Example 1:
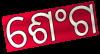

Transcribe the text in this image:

ଶେଂଗ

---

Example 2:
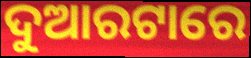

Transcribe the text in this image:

ଦୁଆରଟାରେ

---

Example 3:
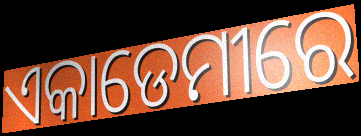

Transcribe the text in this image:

ଏକାଡେମୀରେ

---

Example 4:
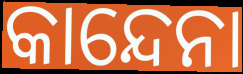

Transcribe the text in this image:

କାନ୍ଦେନା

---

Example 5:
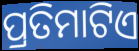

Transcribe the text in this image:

ପ୍ରତିମାଟିଏ